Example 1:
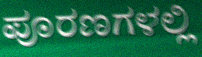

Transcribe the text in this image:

ಪೂರಣಗಳಲ್ಲಿ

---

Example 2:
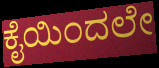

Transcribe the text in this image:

ಕೈಯಿಂದಲೇ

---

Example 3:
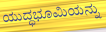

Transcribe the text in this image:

ಯುದ್ಧಭೂಮಿಯನ್ನು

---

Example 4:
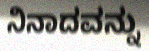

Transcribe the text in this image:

ನಿನಾದವನ್ನು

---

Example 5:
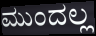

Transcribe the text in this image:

ಮುಂದಲ್ಲ